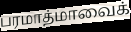
பரமாத்மாவைக்